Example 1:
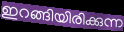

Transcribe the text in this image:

ഇറങ്ങിയിരിക്കുന്ന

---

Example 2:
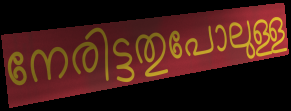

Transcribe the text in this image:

നേരിട്ടതുപോലുള്ള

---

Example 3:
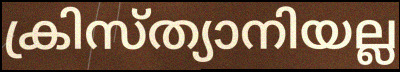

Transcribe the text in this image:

ക്രിസ്ത്യാനിയല്ല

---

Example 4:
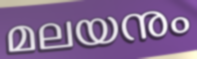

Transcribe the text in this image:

മലയനും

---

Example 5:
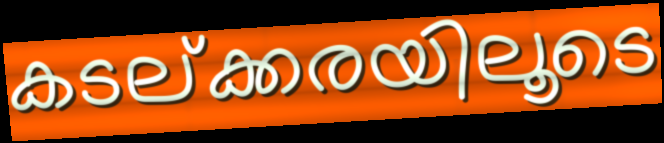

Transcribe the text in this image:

കടല്ക്കരയിലൂടെ